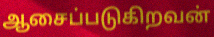
ஆசைப்படுகிறவன்